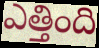
ఎత్తింది